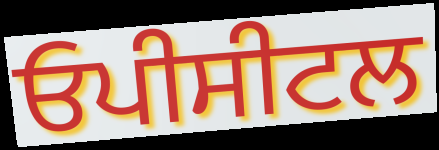
ਓਪੀਸੀਟਲ